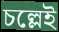
চল্লেই